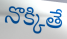
నొక్కితే